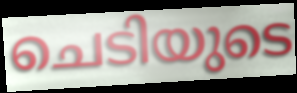
ചെടിയുടെ